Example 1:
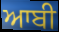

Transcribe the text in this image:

ਆਬੀ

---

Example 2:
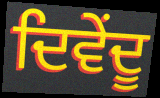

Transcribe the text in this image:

ਦਿਵੇਂਦੂ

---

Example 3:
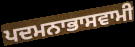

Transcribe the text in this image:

ਪਦਮਨਾਭਾਸਵਾਮੀ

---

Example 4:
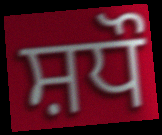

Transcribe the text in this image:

ਸ਼ਧੌ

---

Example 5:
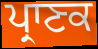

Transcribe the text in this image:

ਪ੍ਰਾਣਕ